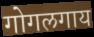
गोगलगाय